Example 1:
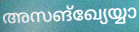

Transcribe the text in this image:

അസങ്ഖ്യേയ്യാ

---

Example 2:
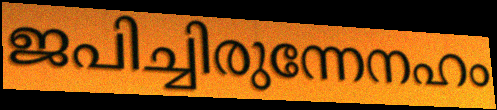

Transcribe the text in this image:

ജപിച്ചിരുന്നേനഹം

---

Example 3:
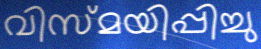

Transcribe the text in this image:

വിസ്മയിപ്പിച്ചു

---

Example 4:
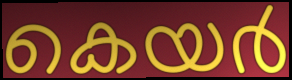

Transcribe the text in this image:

കെയർ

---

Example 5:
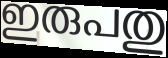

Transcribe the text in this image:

ഇരുപതു